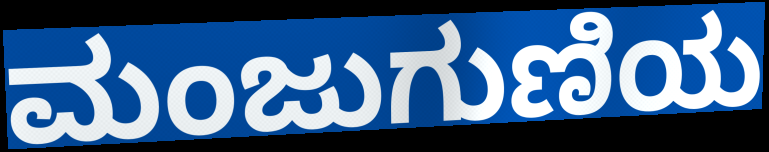
ಮಂಜುಗುಣಿಯ